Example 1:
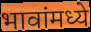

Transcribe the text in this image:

भावांमध्ये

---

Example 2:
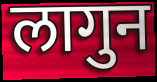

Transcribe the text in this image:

लागुन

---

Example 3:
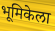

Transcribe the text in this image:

भूमिकेला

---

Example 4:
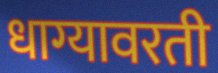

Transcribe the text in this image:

धाग्यावरती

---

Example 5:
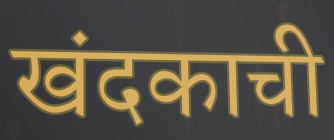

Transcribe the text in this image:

खंदकाची